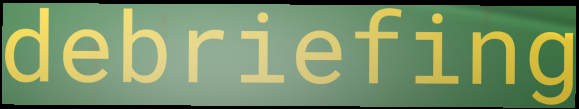
debriefing